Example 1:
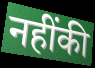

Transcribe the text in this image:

नहींकी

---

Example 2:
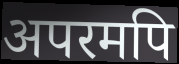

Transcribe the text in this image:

अपरमपि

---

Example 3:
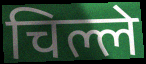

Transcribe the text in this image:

चिल्ले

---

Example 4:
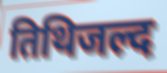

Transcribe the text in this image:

तिथिजल्द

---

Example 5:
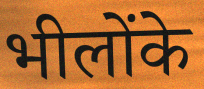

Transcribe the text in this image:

भीलोंके